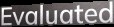
Evaluated